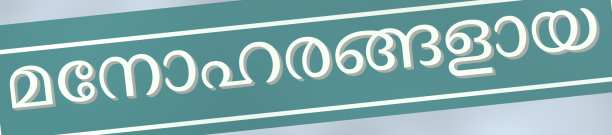
മനോഹരങ്ങളായ